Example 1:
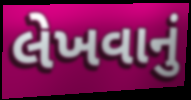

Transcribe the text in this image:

લેખવાનું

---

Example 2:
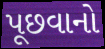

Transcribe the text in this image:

પૂછવાનો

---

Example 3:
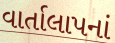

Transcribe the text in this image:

વાર્તાલાપનાં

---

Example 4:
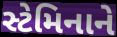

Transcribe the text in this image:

સ્ટેમિનાને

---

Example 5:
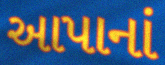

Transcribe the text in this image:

આપાનાં